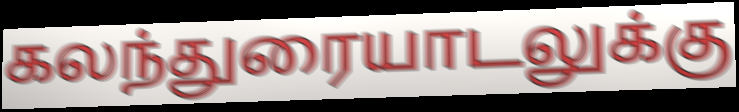
கலந்துரையாடலுக்கு